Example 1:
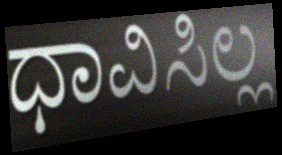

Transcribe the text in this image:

ಧಾವಿಸಿಲ್ಲ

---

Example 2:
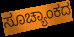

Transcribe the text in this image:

ಸೂಚ್ಯಾಂಕದ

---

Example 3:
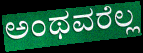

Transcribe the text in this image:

ಅಂಥವರೆಲ್ಲ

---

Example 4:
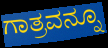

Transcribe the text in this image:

ಗಾತ್ರವನ್ನೂ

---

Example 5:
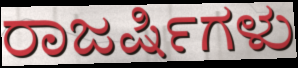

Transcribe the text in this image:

ರಾಜರ್ಷಿಗಳು